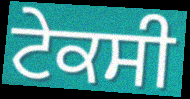
ਟੇਕਸੀ